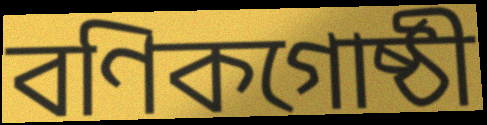
বণিকগোষ্ঠী